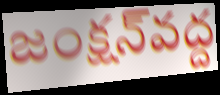
జంక్షన్‌వద్ద